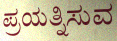
ಪ್ರಯತ್ನಿಸುವ